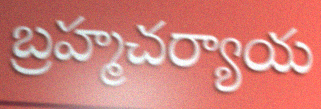
బ్రహ్మచర్యాయ